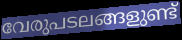
വേരുപടലങ്ങളുണ്ട്